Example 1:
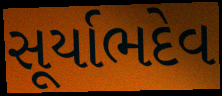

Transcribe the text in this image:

સૂર્યાભદેવ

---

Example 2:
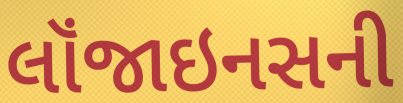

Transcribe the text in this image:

લૉંજાઇનસની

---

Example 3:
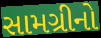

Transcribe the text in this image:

સામગ્રીનો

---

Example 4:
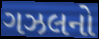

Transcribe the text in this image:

ગઝલનો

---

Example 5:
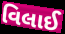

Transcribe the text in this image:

વિલાઈ